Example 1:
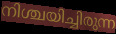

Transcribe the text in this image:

നിശ്ചയിച്ചിരുന്ന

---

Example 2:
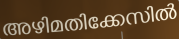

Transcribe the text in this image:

അഴിമതിക്കേസിൽ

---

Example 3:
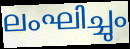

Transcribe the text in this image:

ലംഘിച്ചും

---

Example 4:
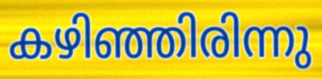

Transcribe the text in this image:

കഴിഞ്ഞിരിന്നു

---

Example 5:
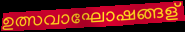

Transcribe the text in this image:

ഉത്സവാഘോഷങ്ങള്